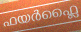
ഫയർഫ്ലൈ